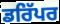
ਡਰਿੱਪਰ